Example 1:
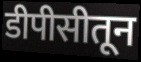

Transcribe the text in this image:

डीपीसीतून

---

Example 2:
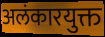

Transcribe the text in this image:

अलंकारयुक्त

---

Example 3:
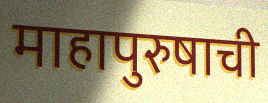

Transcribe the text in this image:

माहापुरुषाची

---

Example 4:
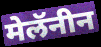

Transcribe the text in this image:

मेलॅनीन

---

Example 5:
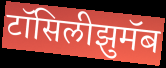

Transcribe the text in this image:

टॉसिलीझुमॅब